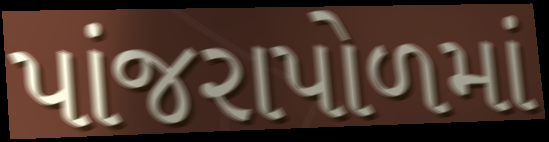
પાંજરાપોળમાં